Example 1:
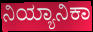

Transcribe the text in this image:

ನಿಯ್ಯಾನಿಕಾ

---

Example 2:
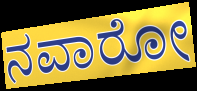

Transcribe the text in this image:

ನವಾರೋ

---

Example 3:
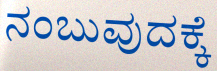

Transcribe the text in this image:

ನಂಬುವುದಕ್ಕೆ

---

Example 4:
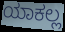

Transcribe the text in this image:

ಯಾಕಲ್ಲ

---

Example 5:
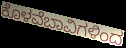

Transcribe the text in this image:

ಕೊಳವೆಬಾವಿಗಳಿಂದ